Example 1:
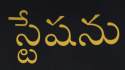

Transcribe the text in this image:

స్టేషను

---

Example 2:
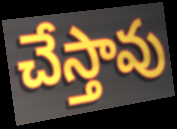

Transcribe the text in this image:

చేస్తావు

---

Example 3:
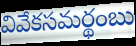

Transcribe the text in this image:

వివేకసమర్థంబు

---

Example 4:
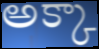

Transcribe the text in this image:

అక్కా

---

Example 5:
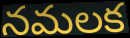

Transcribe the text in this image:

నమలక